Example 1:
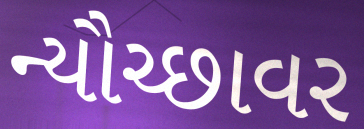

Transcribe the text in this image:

ન્યૌચ્છાવર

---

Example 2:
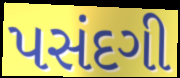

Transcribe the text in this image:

પસંદગી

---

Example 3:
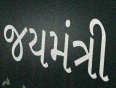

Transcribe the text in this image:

જયમંત્રી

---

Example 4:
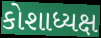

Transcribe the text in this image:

કોશાધ્યક્ષ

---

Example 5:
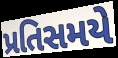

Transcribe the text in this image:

પ્રતિસમયે